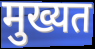
मुख्यत